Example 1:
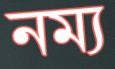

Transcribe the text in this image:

নম্য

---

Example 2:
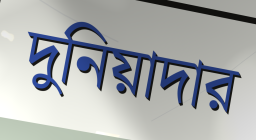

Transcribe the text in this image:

দুনিয়াদার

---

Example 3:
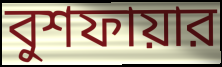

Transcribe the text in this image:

বুশফায়ার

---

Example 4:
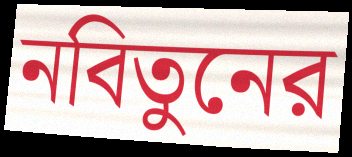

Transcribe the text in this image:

নবিতুনের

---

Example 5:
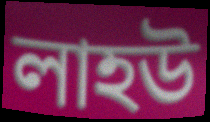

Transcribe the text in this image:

লাহউ